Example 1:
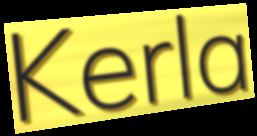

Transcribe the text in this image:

Kerla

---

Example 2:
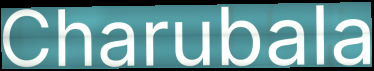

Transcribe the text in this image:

Charubala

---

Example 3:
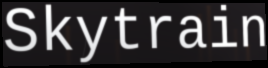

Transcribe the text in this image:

Skytrain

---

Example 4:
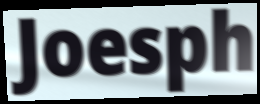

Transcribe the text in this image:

Joesph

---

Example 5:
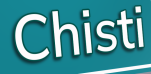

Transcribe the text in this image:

Chisti